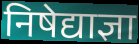
निषेद्याज्ञा